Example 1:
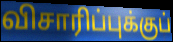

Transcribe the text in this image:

விசாரிப்புக்குப்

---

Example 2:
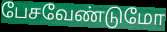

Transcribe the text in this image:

பேசவேண்டுமோ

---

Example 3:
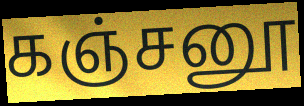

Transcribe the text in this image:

கஞ்சனூ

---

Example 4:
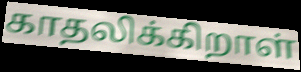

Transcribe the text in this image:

காதலிக்கிறாள்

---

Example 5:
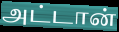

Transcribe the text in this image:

அட்டான்